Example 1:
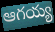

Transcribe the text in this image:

ఆగయ్య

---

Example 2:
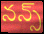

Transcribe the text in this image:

నన్స్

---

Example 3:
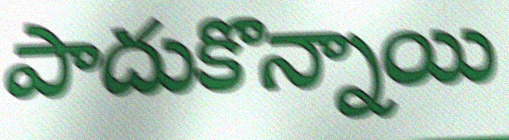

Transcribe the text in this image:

పాదుకొన్నాయి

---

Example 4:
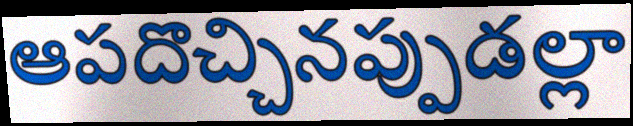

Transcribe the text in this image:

ఆపదొచ్చినప్పుడల్లా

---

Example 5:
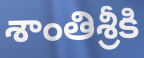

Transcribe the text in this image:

శాంతిశ్రీకి